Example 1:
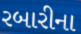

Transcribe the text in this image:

રબારીના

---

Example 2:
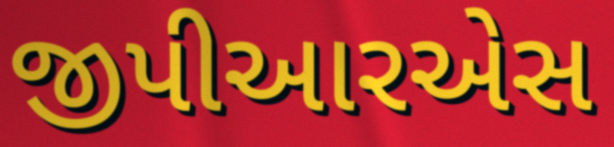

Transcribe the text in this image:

જીપીઆરએસ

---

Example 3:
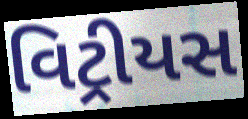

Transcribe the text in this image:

વિટ્રીયસ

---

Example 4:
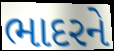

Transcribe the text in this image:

ભાદરને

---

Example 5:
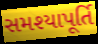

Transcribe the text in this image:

સમશ્યાપૂર્તિ